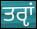
ਤਰੵਾਂ